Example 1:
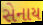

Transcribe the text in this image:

સેનાય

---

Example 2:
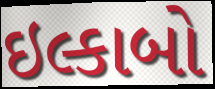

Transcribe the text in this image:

ઇલ્કાબો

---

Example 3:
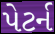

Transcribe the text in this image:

પેટર્ન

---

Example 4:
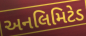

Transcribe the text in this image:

અનલિમિટેડ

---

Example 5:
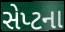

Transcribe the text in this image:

સેપ્ટના